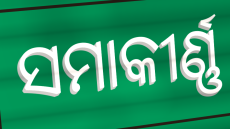
ସମାକୀର୍ଣ୍ଣ